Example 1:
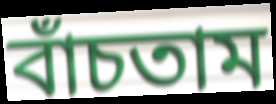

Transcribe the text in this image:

বাঁচতাম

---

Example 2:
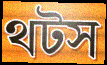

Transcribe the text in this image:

থটস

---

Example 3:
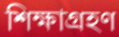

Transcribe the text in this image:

শিক্ষাগ্রহণ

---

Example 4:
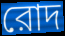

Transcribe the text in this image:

রোদ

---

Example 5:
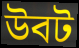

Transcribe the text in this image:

উবট